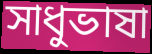
সাধুভাষা